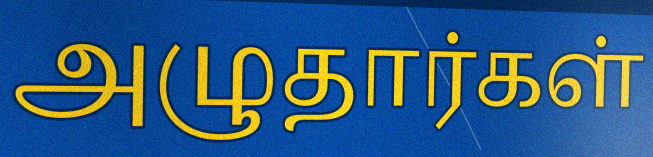
அழுதார்கள்